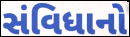
સંવિધાનો